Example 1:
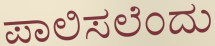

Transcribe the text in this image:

ಪಾಲಿಸಲೆಂದು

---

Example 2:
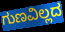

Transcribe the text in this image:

ಗುಣವಿಲ್ಲದ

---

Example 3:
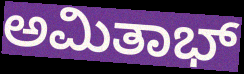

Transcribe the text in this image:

ಅಮಿತಾಭ್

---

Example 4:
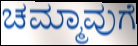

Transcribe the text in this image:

ಚಮ್ಮಾವುಗೆ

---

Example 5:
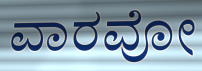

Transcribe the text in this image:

ವಾರವೋ